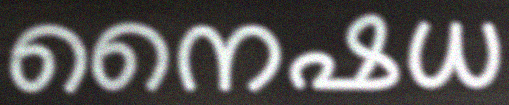
നൈഷധ